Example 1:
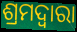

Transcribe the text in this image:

ଶ୍ରମଦ୍ୱାରା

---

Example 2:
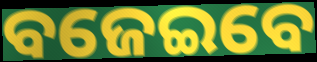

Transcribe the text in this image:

ବଜେଇବେ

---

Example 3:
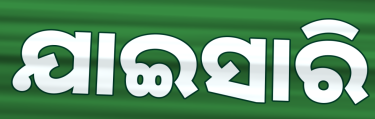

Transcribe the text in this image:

ଯାଇସାରି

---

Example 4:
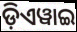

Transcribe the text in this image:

ଡ଼ିଏୱାଇ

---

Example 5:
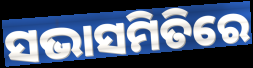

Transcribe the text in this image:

ସଭାସମିତିରେ